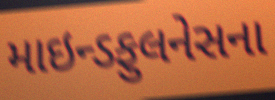
માઇન્ડફુલનેસના